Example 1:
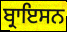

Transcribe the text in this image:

ਬ੍ਰਾਇਸਨ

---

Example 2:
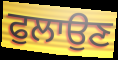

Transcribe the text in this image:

ਫੁਲਾਉਣ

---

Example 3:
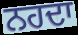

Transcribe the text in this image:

ਨਹਦਾ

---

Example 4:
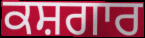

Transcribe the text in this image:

ਕਸ਼ਗਾਰ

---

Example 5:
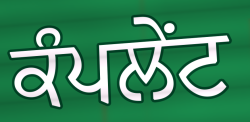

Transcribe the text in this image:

ਕੰਪਲੇਂਟ